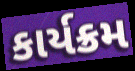
કાર્યક્રમ